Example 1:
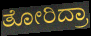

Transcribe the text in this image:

ತೋರಿದ್ರಾ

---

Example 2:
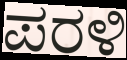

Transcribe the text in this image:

ಪರಳಿ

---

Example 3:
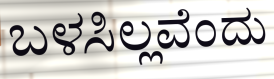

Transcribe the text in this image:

ಬಳಸಿಲ್ಲವೆಂದು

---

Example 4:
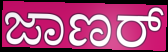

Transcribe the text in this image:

ಜಾಣರ್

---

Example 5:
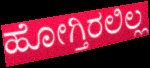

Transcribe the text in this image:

ಹೋಗ್ತಿರಲಿಲ್ಲ